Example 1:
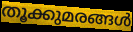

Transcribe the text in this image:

തൂക്കുമരങ്ങൾ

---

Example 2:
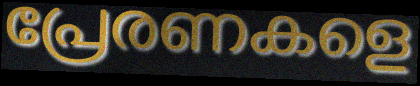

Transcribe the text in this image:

പ്രേരണകളെ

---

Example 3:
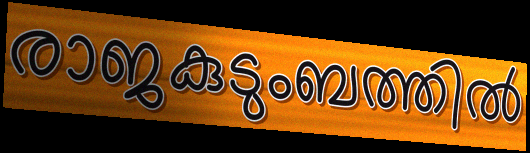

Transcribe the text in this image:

രാജകുടുംബത്തിൽ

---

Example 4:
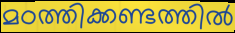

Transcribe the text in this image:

മഠത്തിക്കണ്ടത്തിൽ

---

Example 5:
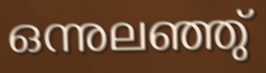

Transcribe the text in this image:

ഒന്നുലഞ്ഞു്